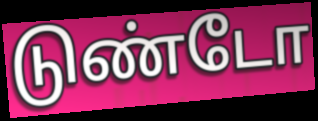
டுண்டோ